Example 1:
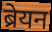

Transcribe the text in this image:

ब्रेयन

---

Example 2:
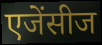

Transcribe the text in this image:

एजेंसीज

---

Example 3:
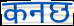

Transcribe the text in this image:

कनछ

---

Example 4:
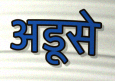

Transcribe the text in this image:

अडूसे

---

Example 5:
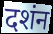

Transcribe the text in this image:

दशंन